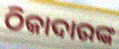
ଠିକାଦାରଙ୍କ